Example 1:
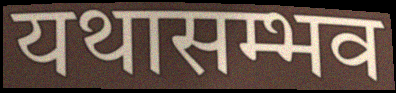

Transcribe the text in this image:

यथासम्भव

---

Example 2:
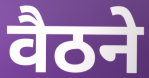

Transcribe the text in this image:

वैठने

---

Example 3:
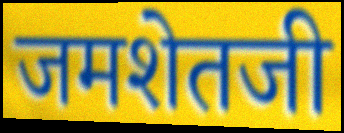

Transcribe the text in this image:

जमशेतजी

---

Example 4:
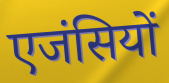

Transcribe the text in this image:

एजंसियों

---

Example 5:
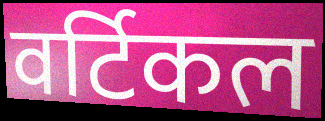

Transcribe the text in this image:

वर्टिकल